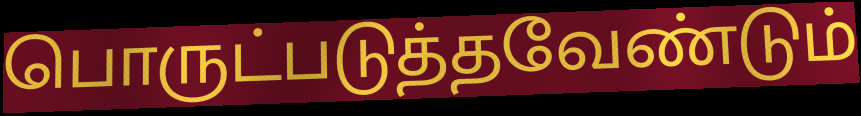
பொருட்படுத்தவேண்டும்